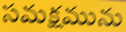
సమక్షమును